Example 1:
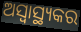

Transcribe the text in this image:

ଅସ୍ୱାସ୍ଥ୍ୟକର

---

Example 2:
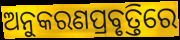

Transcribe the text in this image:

ଅନୁକରଣପ୍ରବୃତ୍ତିରେ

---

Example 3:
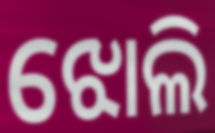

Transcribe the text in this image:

ଝୋଲି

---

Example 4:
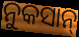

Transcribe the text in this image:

ନୁକସାନ୍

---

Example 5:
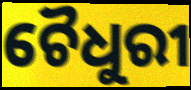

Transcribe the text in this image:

ଚୈଧୁରୀ